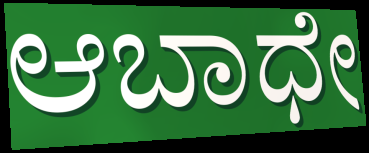
ಆಬಾಧೇ